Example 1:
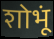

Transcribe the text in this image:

शोभूं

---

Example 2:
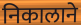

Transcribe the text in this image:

निकालाने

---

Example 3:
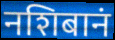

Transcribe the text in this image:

नशिबानं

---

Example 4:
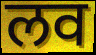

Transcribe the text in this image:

लव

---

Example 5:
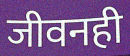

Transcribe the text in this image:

जीवनही